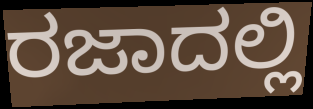
ರಜಾದಲ್ಲಿ